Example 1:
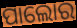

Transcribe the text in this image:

ପାଲୋର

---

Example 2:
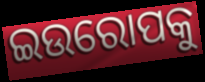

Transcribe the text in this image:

ଇଉରୋପକୁ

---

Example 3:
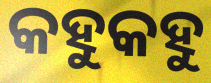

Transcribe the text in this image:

କହୁକହୁ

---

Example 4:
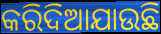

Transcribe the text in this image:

କରିଦିଆଯାଉଛି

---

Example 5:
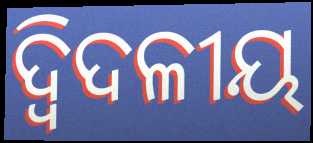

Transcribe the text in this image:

ଦ୍ବିଦଳୀୟ